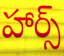
హార్స్